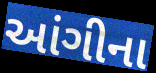
આંગીના